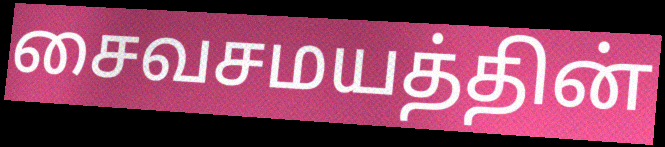
சைவசமயத்தின்